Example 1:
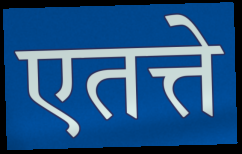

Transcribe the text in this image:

एतत्ते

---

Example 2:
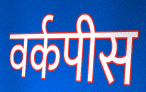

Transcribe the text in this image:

वर्कपीस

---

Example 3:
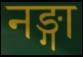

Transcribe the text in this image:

नङ्गा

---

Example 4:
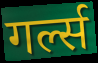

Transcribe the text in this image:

गर्ल्स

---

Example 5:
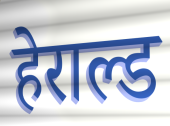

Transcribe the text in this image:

हेराल्ड